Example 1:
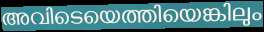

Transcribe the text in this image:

അവിടെയെത്തിയെങ്കിലും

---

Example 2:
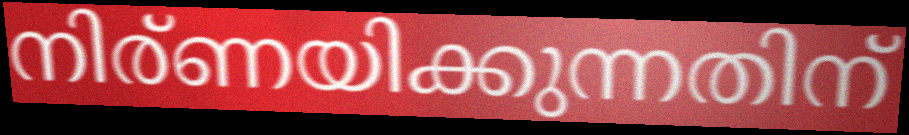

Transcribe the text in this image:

നിര്ണയിക്കുന്നതിന്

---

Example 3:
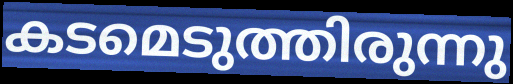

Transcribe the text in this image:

കടമെടുത്തിരുന്നു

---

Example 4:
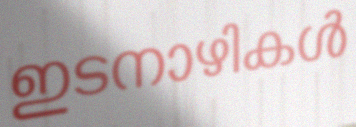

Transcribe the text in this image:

ഇടനാഴികൾ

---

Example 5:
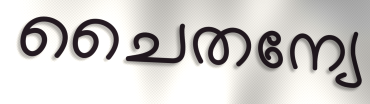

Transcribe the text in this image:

ചൈതന്യേ